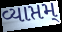
વ્યાપ્તમ્